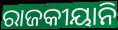
ରାଜକୀୟାନି